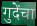
गुदेंचा